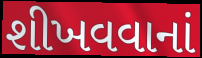
શીખવવાનાં